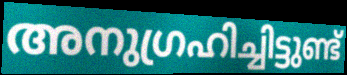
അനുഗ്രഹിച്ചിട്ടുണ്ട്